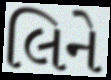
લિને